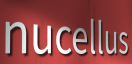
nucellus